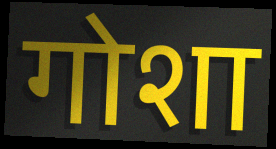
गोशा